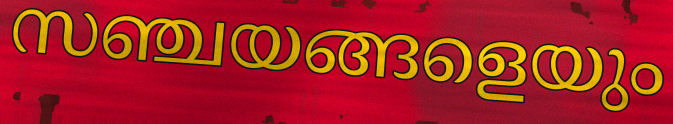
സഞ്ചയങ്ങളെയും